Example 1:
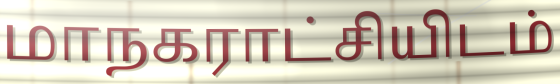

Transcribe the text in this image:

மாநகராட்சியிடம்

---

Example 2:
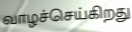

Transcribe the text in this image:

வாழச்செய்கிறது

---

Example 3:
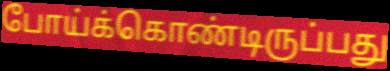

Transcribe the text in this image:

போய்க்கொண்டிருப்பது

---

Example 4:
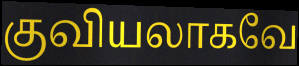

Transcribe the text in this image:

குவியலாகவே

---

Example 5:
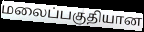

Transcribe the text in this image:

மலைப்பகுதியான